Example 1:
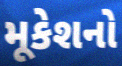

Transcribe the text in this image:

મૂકેશનો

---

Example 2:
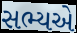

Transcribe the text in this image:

સભ્યએ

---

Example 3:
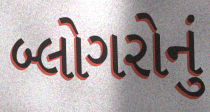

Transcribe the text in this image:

બ્લોગરોનું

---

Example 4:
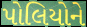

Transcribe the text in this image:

પોલિયોને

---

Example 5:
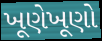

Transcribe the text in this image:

ખૂણેખૂણો